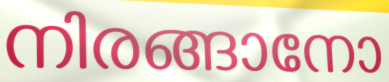
നിരങ്ങാനോ